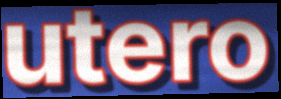
utero